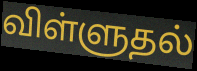
விள்ளுதல்